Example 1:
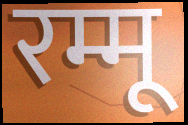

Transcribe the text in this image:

रम्मू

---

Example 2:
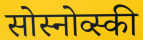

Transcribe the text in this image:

सोस्नोव्स्की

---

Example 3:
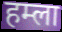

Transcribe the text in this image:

हम्ला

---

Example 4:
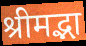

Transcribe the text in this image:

श्रीमद्भा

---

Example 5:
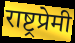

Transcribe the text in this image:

राष्ट्रप्रेमी